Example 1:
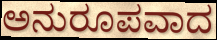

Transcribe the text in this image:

ಅನುರೂಪವಾದ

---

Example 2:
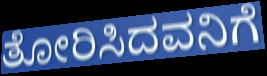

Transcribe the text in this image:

ತೋರಿಸಿದವನಿಗೆ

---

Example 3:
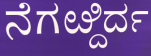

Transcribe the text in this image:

ನೆಗೞ್ದಿರ್ದ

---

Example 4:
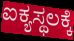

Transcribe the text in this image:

ಐಕ್ಯಸ್ಥಲಕ್ಕೆ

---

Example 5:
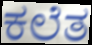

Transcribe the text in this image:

ಕಲೆತ